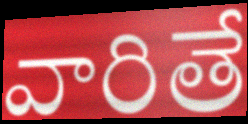
వారితే